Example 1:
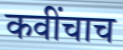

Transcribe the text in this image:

कवींचाच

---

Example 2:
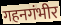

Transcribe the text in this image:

गहनगंभीर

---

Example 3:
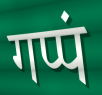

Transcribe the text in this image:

गप्पं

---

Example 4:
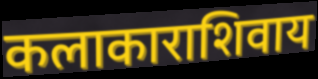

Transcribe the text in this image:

कलाकाराशिवाय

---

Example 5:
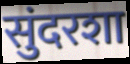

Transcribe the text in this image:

सुंदरशा